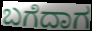
ಬಗೆದಾಗ